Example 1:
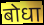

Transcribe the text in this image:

बोधा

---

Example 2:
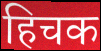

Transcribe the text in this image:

हिचक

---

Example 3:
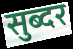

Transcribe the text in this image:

सुब्दर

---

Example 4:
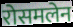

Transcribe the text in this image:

रोसमलेन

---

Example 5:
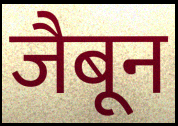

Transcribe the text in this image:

जैबून